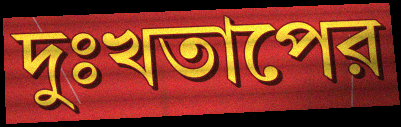
দুঃখতাপের